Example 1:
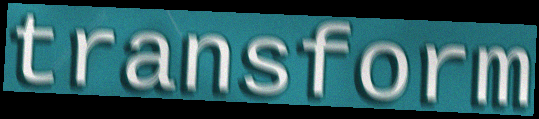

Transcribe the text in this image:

transform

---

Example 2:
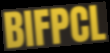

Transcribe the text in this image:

BIFPCL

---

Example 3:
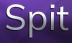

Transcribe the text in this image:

Spit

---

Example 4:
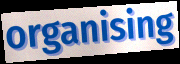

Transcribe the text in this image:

organising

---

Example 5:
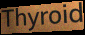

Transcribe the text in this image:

Thyroid